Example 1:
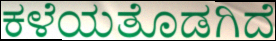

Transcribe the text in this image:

ಕಳೆಯತೊಡಗಿದೆ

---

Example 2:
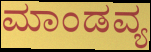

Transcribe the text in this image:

ಮಾಂಡವ್ಯ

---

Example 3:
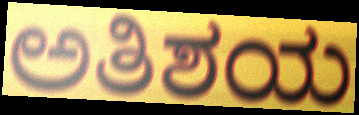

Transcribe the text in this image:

ಅತಿಶಯ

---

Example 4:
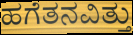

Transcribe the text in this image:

ಹಗೆತನವಿತ್ತು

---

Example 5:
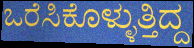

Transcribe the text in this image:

ಒರೆಸಿಕೊಳ್ಳುತ್ತಿದ್ದ